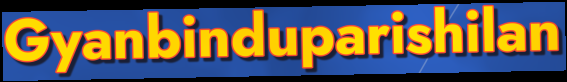
Gyanbinduparishilan